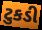
ટુકડી